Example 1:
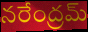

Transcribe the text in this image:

నరేంద్రమ్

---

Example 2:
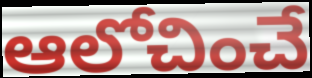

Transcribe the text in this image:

ఆలోచించే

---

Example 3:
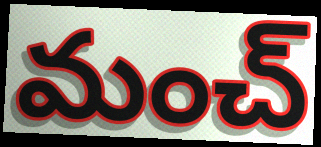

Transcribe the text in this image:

మంచ్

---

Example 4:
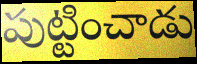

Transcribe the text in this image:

పుట్టించాడు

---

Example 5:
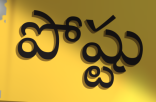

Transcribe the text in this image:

పోష్టు